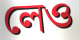
লেও